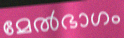
മേൽഭാഗം